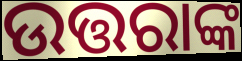
ଉତ୍ତରାଙ୍କ